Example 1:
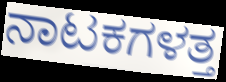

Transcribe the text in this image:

ನಾಟಕಗಳತ್ತ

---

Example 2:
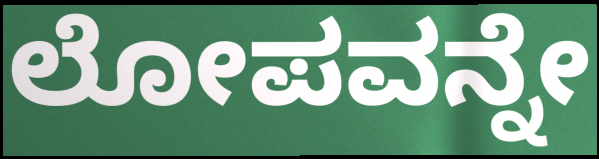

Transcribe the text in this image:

ಲೋಪವನ್ನೇ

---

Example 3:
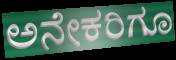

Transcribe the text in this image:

ಅನೇಕರಿಗೂ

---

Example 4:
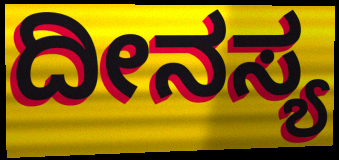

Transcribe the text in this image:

ದೀನಸ್ಯ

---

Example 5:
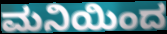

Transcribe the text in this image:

ಮನಿಯಿಂದ